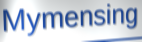
Mymensing